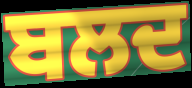
ਬਲਦ